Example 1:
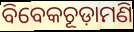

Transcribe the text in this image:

ବିବେକଚୂଡ଼ାମଣି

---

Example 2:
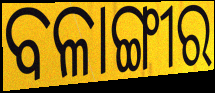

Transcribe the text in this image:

ବଳାଙ୍ଗୀର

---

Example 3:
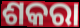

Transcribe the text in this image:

ଶକରା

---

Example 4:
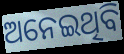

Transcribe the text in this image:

ଅନେଇଥିବି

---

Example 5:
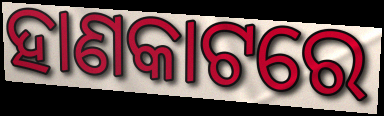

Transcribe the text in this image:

ହାଣକାଟରେ